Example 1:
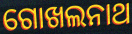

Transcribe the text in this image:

ଗୋଖଲନାଥ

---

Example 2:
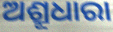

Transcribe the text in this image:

ଅଶ୍ରୂଧାରା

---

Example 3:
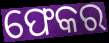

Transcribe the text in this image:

ଫେକର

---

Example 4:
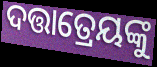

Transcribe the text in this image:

ଦତ୍ତାତ୍ରେୟଙ୍କୁ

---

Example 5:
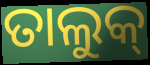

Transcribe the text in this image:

ତାଲୁକ୍